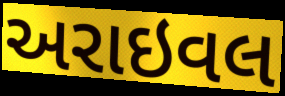
અરાઇવલ